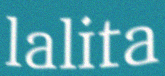
lalita